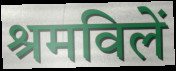
श्रमविलें